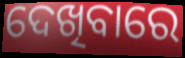
ଦେଖିବାରେ